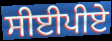
ਸੀਈਪੀਏ